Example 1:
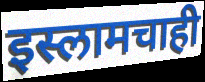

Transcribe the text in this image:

इस्लामचाही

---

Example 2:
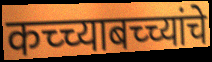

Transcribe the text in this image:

कच्च्याबच्च्यांचे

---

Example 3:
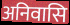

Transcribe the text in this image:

अनिवासि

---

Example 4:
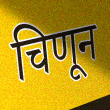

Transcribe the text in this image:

चिणून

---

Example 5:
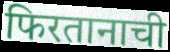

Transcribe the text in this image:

फिरतानाची